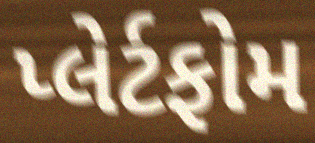
પ્લેર્ટફોમ